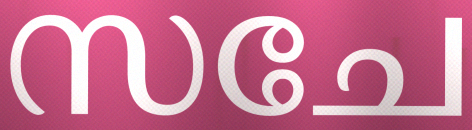
സചേ